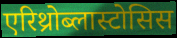
एरिथ्रोब्लास्टोसिस